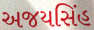
અજયસિંહ